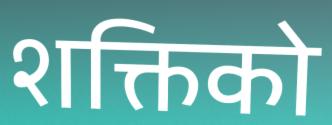
शक्तिको